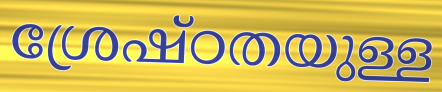
ശ്രേഷ്ഠതയുള്ള